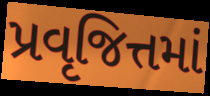
પ્રવૃજિત્તમાં